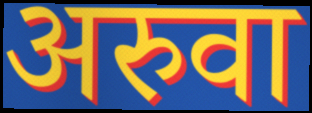
अरुवा